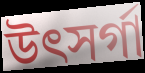
উৎসৰ্গা